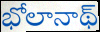
భోలానాథ్